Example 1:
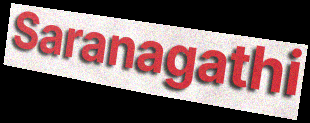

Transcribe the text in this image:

Saranagathi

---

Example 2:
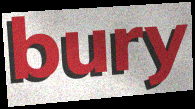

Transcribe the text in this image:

bury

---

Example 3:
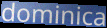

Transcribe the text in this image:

dominica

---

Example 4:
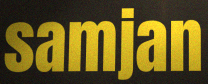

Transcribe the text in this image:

samjan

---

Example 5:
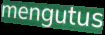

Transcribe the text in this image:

mengutus